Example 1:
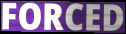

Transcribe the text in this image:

FORCED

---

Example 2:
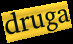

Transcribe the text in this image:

druga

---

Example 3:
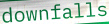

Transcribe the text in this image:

downfalls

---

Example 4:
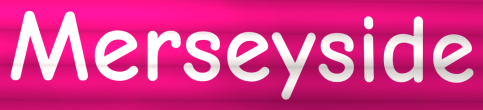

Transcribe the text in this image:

Merseyside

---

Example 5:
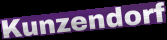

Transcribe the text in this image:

Kunzendorf